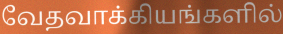
வேதவாக்கியங்களில்